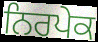
ਨਿਰਪੇਕ